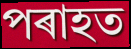
পৰাহত